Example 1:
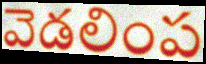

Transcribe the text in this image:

వెడలింప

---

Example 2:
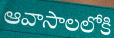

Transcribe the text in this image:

ఆవాసాలలోకి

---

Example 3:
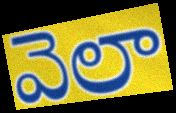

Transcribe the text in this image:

వెలా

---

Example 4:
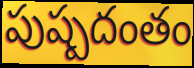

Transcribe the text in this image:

పుష్పదంతం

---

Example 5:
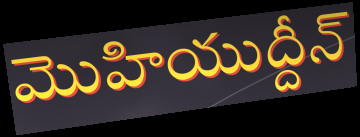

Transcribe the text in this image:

మొహియుద్దీన్